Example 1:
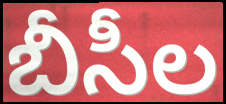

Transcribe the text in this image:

బీసీల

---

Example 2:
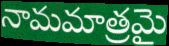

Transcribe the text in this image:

నామమాత్రమై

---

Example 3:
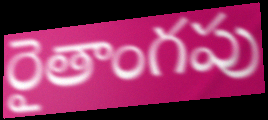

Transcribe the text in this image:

రైతాంగపు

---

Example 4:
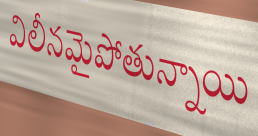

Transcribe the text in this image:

విలీనమైపోతున్నాయి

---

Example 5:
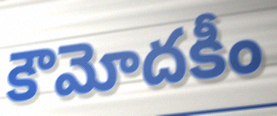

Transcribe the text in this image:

కౌమోదకీం